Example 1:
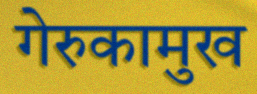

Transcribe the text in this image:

गेरुकामुख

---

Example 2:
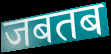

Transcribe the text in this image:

जबतब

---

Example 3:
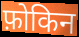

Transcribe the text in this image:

फ़ोकिन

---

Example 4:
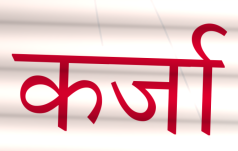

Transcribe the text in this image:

कर्जा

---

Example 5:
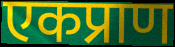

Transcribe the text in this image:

एकप्राण